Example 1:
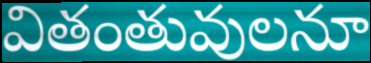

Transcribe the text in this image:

వితంతువులనూ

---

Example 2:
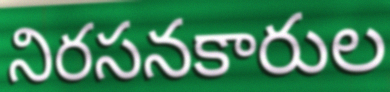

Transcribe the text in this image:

నిరసనకారుల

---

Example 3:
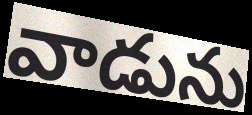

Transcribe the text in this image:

వాడును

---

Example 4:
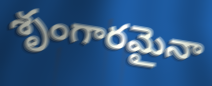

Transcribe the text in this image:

శృంగారమైనా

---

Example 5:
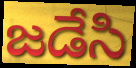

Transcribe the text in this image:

జడేసి